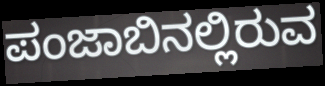
ಪಂಜಾಬಿನಲ್ಲಿರುವ